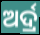
ଅର୍ଦ୍ର